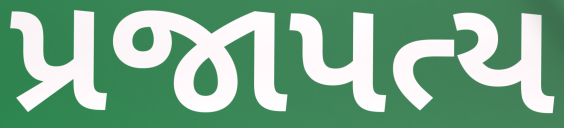
પ્રજાપત્ય